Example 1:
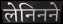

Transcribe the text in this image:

लेनिनने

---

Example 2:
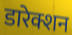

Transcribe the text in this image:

डारेक्शन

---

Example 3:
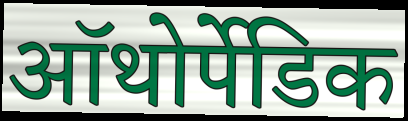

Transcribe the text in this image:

ऑथोर्पेडिक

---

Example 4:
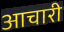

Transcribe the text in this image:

आचारी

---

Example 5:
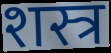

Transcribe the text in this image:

शस्त्र